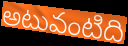
అటువంటిది